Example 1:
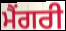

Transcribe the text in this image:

ਮੈਂਗਰੀ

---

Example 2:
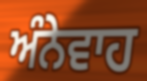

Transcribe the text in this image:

ਅੰਨੇਵਾਹ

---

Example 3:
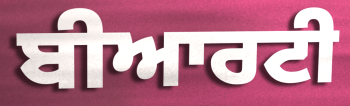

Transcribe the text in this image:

ਬੀਆਰਟੀ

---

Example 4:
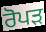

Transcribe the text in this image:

ਰੋਪਡ਼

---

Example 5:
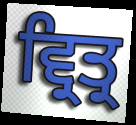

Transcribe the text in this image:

ਵ੍ਰਿਤ੍ਰ